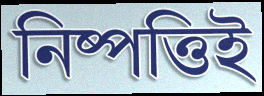
নিষ্পত্তিই